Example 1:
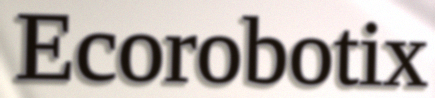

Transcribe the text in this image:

Ecorobotix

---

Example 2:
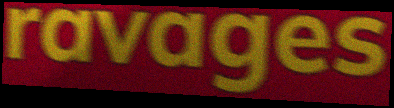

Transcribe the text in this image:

ravages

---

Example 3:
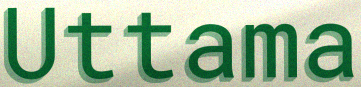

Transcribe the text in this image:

Uttama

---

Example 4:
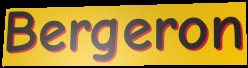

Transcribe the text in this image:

Bergeron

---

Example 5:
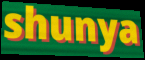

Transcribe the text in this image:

shunya